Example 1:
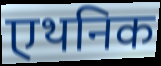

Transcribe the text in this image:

एथनिक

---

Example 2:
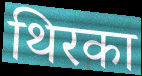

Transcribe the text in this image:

थिरका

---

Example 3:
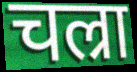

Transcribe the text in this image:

चल्रा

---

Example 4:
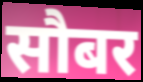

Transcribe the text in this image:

सौबर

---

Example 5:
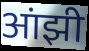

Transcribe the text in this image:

आंझी